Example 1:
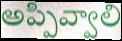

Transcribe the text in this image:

అప్పివ్వాలి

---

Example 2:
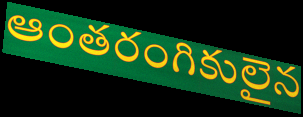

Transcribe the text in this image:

ఆంతరంగికులైన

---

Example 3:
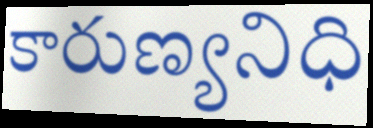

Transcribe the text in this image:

కారుణ్యనిధి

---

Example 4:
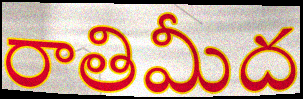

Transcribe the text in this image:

రాతిమీద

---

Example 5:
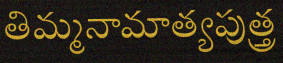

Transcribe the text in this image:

తిమ్మనామాత్యపుత్త్ర